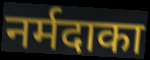
नर्मदाका